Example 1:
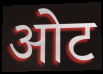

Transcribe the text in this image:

ओट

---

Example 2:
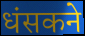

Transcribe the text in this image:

धंसकने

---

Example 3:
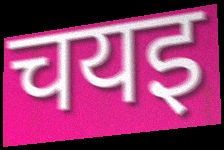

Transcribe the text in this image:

चयइ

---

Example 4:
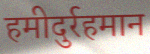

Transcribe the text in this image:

हमीदुर्रहमान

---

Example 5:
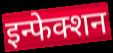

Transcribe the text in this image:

इन्फेक्शन